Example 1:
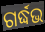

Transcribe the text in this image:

ଗର୍ଦ୍ଧଭ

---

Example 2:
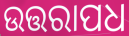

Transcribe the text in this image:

ଉତ୍ତରାପଧ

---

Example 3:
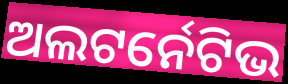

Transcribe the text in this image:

ଅଲଟର୍ନେଟିଭ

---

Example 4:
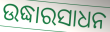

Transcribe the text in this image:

ଉଦ୍ଧାରସାଧନ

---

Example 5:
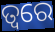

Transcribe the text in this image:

ତ୍ଵରେ